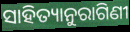
ସାହିତ୍ୟାନୁରାଗିଣୀ